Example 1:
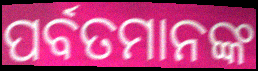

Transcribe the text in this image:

ପର୍ବତମାନଙ୍କ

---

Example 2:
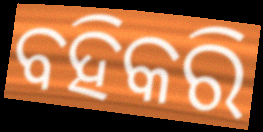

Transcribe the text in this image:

ବହିକରି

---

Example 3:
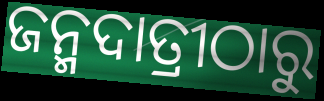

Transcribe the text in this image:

ଜନ୍ମଦାତ୍ରୀଠାରୁ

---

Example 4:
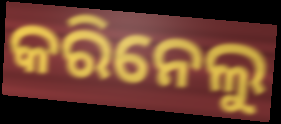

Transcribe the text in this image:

କରିନେଲୁ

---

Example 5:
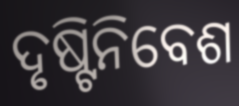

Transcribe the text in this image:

ଦୃଷ୍ଟିନିବେଶ